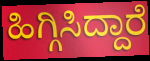
ಹಿಗ್ಗಿಸಿದ್ದಾರೆ